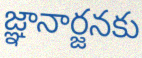
జ్ఞానార్జనకు